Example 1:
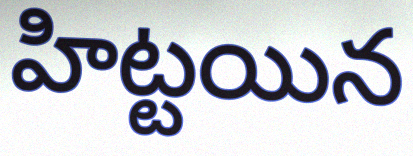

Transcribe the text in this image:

హిట్టయిన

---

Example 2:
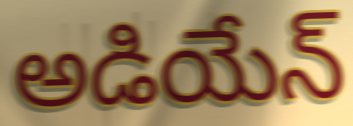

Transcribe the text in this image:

అడియేన్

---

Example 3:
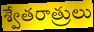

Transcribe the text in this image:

శ్వేతరాత్రులు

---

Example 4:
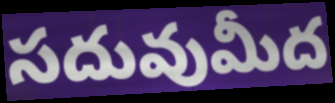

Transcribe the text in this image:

సదువుమీద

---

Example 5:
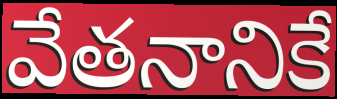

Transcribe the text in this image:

వేతనానికే